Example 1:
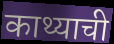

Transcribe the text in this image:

काथ्याची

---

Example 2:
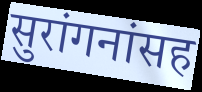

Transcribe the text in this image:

सुरांगनांसह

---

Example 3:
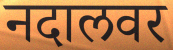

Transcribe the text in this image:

नदालवर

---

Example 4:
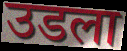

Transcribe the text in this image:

उडला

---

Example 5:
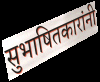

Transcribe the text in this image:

सुभाषितकारांनी